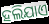
ହଲିଯାଏ